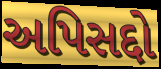
અપિસદ્દો